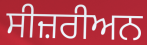
ਸੀਜ਼ਰੀਅਨ